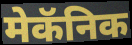
मेकॅनिक